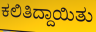
ಕಲಿತಿದ್ದಾಯಿತು